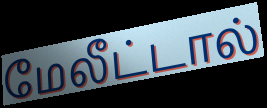
மேலீட்டால்